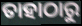
ତାହାଠାରୁ